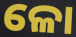
ଳୋ